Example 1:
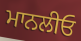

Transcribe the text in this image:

ਮਾਨਲੀਓ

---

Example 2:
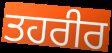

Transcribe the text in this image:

ਤਹਰੀਰ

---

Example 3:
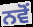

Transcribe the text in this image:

ਨਵੋਂ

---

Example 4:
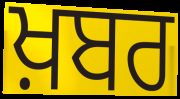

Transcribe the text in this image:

ਖ਼ਬਰ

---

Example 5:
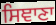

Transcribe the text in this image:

ਸਿਞਾਣਾ